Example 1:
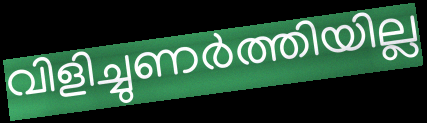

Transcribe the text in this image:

വിളിച്ചുണർത്തിയില്ല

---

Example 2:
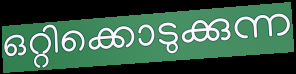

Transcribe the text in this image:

ഒറ്റിക്കൊടുക്കുന്ന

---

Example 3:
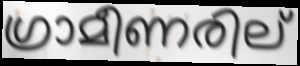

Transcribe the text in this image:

ഗ്രാമീണരില്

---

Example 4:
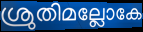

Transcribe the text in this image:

ശ്രുതിമല്ലോകേ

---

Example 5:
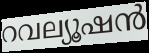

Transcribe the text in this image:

റവല്യൂഷൻ